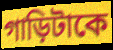
গাড়িটাকে